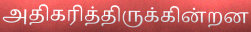
அதிகரித்திருக்கின்றன